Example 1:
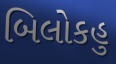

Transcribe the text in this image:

બિલોકહુ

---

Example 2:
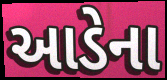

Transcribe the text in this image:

આડેના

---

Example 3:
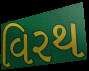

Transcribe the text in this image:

વિરથ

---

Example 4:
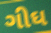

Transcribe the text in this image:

ગીઘ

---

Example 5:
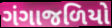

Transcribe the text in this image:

ગંગાજળિયો